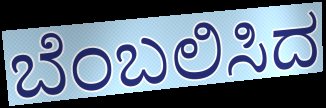
ಬೆಂಬಲಿಸಿದ